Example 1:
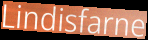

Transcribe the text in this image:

Lindisfarne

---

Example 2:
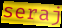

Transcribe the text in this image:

seraj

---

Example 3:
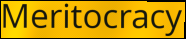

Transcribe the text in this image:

Meritocracy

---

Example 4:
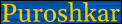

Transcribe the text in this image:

Puroshkar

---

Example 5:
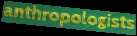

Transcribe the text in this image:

anthropologists